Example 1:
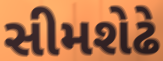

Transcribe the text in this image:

સીમશેઢે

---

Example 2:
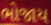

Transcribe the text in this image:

ભોજાય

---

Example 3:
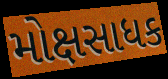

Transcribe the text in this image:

મોક્ષસાધક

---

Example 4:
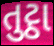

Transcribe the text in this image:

તુટ્ઠા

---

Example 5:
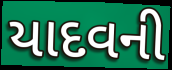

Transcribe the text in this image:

યાદવની